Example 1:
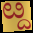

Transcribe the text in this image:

ೞ್ದ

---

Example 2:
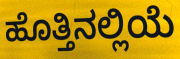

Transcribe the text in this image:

ಹೊತ್ತಿನಲ್ಲಿಯೆ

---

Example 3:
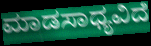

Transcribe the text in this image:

ಮಾಡಸಾಧ್ಯವಿದೆ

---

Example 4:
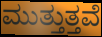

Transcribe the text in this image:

ಮುತ್ತುತ್ತವೆ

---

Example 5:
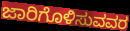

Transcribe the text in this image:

ಜಾರಿಗೊಳಿಸುವವರ